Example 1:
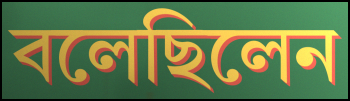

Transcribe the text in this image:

বলেছিলেন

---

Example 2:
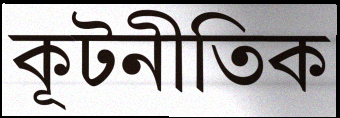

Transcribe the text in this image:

কূটনীতিক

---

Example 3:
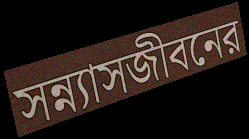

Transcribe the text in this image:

সন্ন্যাসজীবনের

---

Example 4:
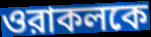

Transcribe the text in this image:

ওরাকলকে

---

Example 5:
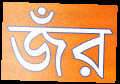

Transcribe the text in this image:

জঁর